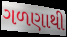
ગળણાથી